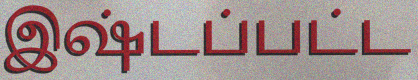
இஷ்டப்பட்ட